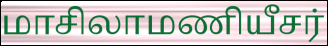
மாசிலாமணியீசர்